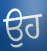
ਉਹ